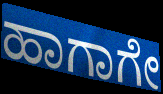
ಹಾಗಾಗೇ